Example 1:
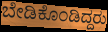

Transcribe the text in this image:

ಬೇಡಿಕೊಂಡಿದ್ದರು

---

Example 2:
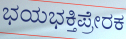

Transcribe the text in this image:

ಭಯಭಕ್ತಿಪ್ರೇರಕ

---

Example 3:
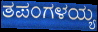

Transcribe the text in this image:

ತಪಂಗಳಯ್ಯ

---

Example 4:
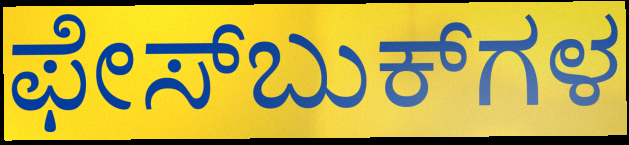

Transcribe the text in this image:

ಫೇಸ್‌ಬುಕ್‌ಗಳ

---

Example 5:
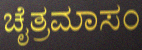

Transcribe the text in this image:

ಚೈತ್ರಮಾಸಂ